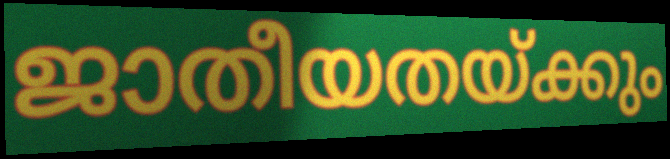
ജാതീയതയ്ക്കും